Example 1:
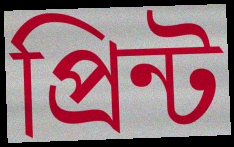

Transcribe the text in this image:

প্রিন্ট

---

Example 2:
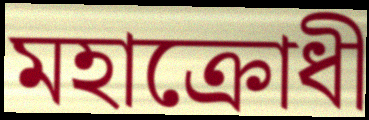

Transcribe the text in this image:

মহাক্রোধী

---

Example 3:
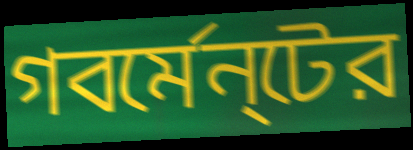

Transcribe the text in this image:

গবর্মেন্‌টের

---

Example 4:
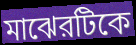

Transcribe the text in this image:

মাঝেরটিকে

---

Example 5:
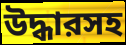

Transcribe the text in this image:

উদ্ধারসহ